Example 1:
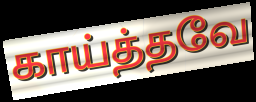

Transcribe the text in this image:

காய்த்தவே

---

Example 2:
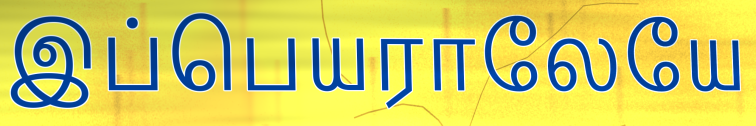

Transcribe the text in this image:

இப்பெயராலேயே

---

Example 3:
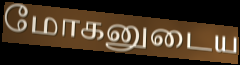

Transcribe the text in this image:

மோகனுடைய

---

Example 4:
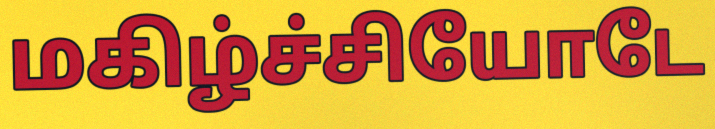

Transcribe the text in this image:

மகிழ்ச்சியோடே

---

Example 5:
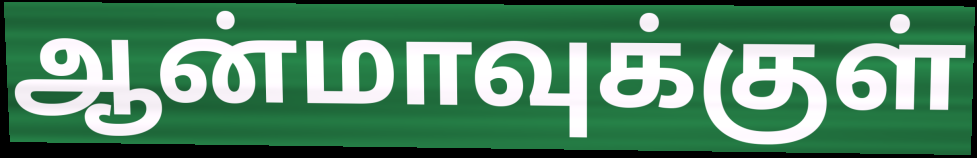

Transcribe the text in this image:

ஆன்மாவுக்குள்